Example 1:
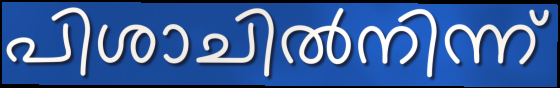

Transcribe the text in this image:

പിശാചിൽനിന്ന്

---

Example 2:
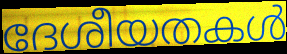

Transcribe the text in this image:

ദേശീയതകൾ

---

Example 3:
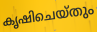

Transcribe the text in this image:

കൃഷിചെയ്തും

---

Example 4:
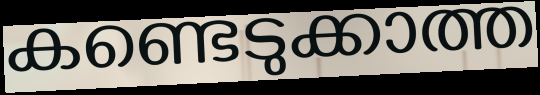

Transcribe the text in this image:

കണ്ടെടുക്കാത്ത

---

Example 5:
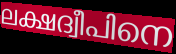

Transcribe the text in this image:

ലക്ഷദ്വീപിനെ